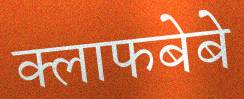
क्लाफबेबे